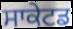
ਸਾਕੇਟਡ